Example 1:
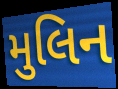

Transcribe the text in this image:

મુલિન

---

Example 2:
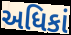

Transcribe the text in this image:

અધિકાં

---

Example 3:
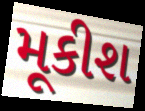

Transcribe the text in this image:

મૂકીશ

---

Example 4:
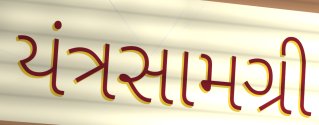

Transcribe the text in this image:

યંત્રસામગ્રી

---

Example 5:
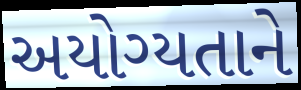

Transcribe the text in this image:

અયોગ્યતાને